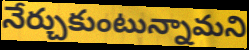
నేర్చుకుంటున్నామని